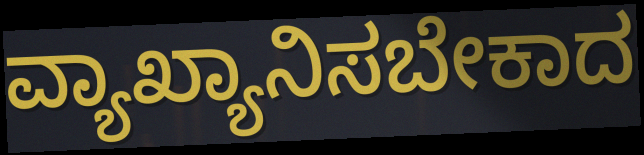
ವ್ಯಾಖ್ಯಾನಿಸಬೇಕಾದ